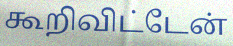
கூறிவிட்டேன்